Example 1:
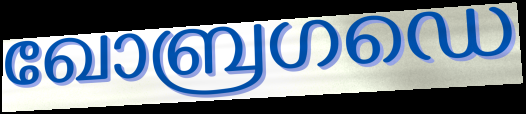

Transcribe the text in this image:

ഖോബ്രഗഡെ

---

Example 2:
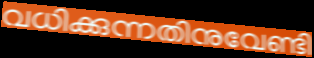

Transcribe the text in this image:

വധിക്കുന്നതിനുവേണ്ടി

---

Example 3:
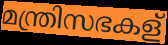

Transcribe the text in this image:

മന്ത്രിസഭകള്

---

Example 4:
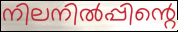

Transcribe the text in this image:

നിലനിൽപ്പിന്റെ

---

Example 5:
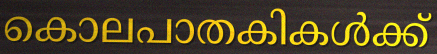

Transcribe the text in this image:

കൊലപാതകികൾക്ക്